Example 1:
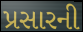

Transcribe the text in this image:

પ્રસારની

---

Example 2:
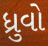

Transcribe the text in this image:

ધ્રુવો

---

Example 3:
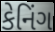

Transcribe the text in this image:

કેનિંગ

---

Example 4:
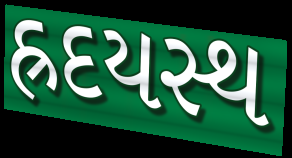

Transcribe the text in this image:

હ્રદયસ્થ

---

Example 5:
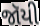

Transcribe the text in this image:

જૉયી